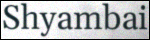
Shyambai